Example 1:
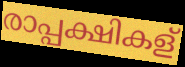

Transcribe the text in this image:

രാപ്പക്ഷികള്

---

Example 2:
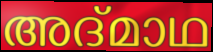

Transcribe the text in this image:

അദ്മാഥ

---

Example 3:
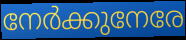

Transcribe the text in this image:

നേർക്കുനേരേ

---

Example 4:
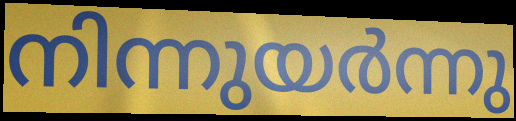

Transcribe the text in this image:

നിന്നുയർന്നു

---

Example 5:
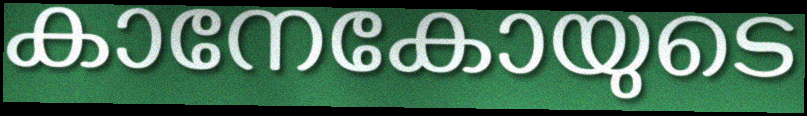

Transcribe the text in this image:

കാനേകോയുടെ